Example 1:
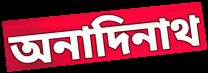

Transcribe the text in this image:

অনাদিনাথ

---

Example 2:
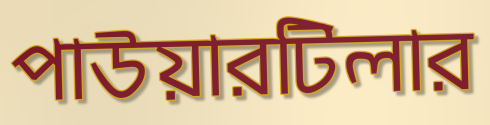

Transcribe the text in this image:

পাউয়ারটিলার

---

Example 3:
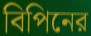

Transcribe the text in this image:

বিপিনের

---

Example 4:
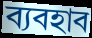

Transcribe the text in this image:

ব্যবহাব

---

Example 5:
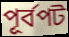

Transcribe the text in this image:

পূর্বপট